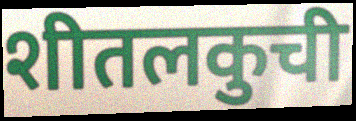
शीतलकुची